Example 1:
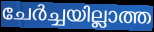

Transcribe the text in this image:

ചേർച്ചയില്ലാത്ത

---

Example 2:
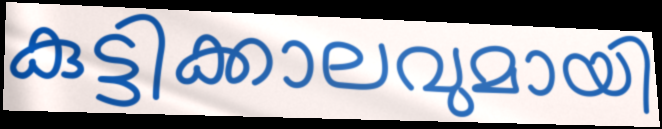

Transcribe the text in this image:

കുട്ടിക്കാലവുമായി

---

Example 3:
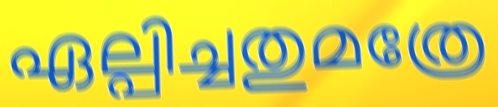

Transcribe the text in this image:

ഏല്പിച്ചതുമത്രേ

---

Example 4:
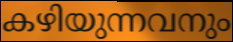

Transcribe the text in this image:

കഴിയുന്നവനും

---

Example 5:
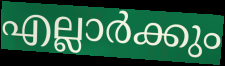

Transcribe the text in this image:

എല്ലാർക്കും